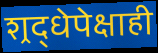
श्रद्धेपेक्षाही